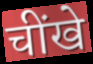
चींखे